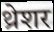
थ्रेशर